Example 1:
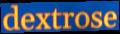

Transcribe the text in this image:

dextrose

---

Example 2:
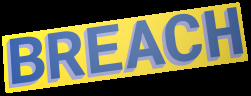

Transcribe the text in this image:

BREACH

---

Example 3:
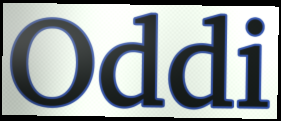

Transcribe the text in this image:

Oddi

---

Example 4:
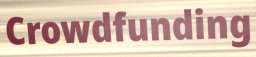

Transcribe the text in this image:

Crowdfunding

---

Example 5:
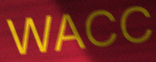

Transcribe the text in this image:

WACC